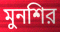
মুনশির